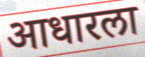
आधारला